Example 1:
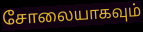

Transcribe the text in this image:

சோலையாகவும்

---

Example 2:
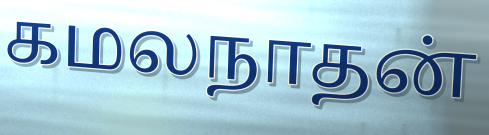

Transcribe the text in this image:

கமலநாதன்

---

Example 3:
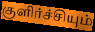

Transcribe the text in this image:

குளிர்ச்சியும்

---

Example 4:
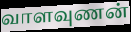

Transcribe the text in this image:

வாளவுணன்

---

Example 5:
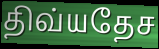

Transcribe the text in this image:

திவ்யதேச